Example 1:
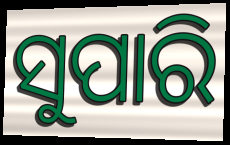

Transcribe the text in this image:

ସୁପାରି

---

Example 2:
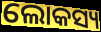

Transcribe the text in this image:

ଲୋକସ୍ୟ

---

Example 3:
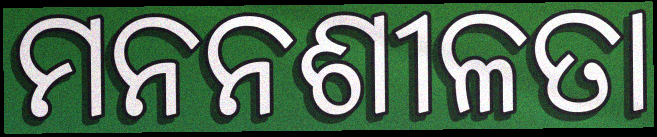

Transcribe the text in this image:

ମନନଶୀଳତା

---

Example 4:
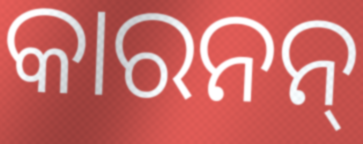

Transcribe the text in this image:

କାରନନ୍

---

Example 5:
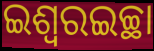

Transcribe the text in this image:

ଇଶ୍ୱରଇଚ୍ଛା